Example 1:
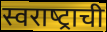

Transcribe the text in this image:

स्वराष्ट्राची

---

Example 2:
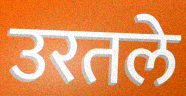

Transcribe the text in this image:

उरतले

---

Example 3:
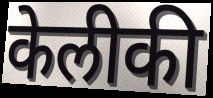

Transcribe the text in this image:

केलीकी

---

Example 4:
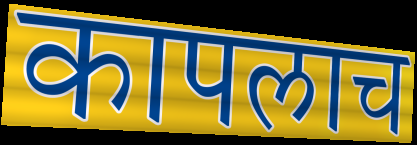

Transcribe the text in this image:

कापलाच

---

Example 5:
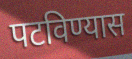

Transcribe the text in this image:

पटविण्यास